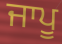
ਜਾਪੂ